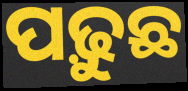
ପଢ଼ୁଛ